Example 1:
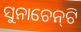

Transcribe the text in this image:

ସୁନାଚେନ୍‍ଟି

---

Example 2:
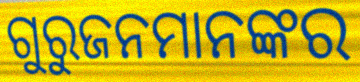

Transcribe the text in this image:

ଗୁରୁଜନମାନଙ୍କର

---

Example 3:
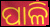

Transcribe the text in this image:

ପାଳି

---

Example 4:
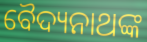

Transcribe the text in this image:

ବୈଦ୍ୟନାଥଙ୍କ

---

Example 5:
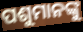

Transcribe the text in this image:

ପଶୁମାନଙ୍କୁ